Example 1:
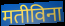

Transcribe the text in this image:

मतीविना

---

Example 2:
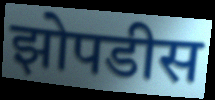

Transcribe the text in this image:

झोपडीस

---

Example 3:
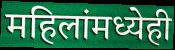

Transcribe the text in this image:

महिलांमध्येही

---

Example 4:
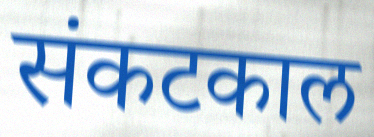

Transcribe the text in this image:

संकटकाल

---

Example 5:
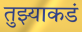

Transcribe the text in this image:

तुझ्याकडं